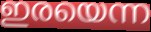
ഇരയെന്ന